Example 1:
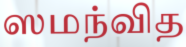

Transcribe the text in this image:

ஸமந்வித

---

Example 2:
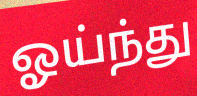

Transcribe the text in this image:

ஓய்ந்து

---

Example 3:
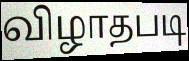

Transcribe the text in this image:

விழாதபடி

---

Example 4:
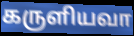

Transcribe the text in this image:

கருளியவா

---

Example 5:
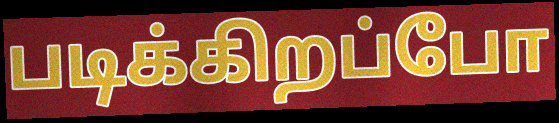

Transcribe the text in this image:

படிக்கிறப்போ